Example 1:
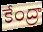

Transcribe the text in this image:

కేంద్రా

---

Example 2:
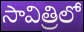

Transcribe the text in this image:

సావిత్రిలో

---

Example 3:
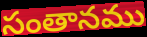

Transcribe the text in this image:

సంతానము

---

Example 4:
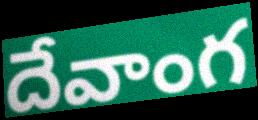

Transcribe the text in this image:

దేవాంగ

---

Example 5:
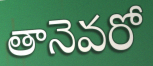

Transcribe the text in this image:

తానెవరో